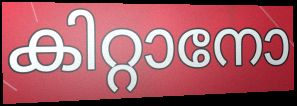
കിറ്റാനോ